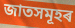
জাতসমূহৰ